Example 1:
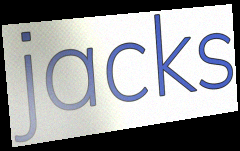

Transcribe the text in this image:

jacks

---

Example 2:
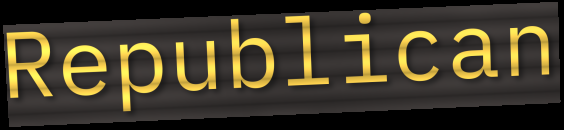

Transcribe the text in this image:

Republican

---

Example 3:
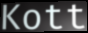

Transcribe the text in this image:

Kott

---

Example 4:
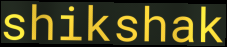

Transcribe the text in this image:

shikshak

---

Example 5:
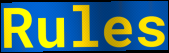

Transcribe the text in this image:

Rules